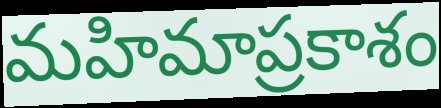
మహిమాప్రకాశం